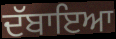
ਦੱਬਾਇਆ